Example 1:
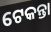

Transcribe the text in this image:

ଟେକନ୍ତା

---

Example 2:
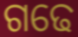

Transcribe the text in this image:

ଗଢେ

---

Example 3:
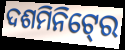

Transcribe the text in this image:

ଦଶମିନିଟ୍‍ରେ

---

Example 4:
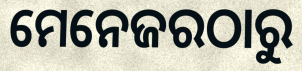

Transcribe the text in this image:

ମେନେଜରଠାରୁ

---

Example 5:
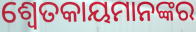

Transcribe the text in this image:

ଶ୍ବେତକାୟମାନଙ୍କର